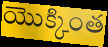
యొక్కింత